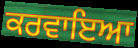
ਕਰਵਾਇਆ